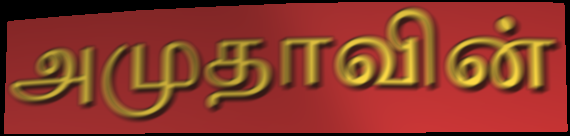
அமுதாவின்